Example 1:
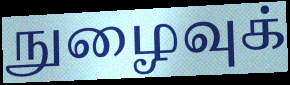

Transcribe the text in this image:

நுழைவுக்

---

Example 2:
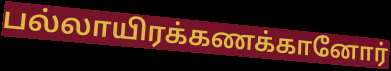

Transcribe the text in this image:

பல்லாயிரக்கணக்கானோர்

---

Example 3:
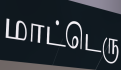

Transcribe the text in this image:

மாட்டெரு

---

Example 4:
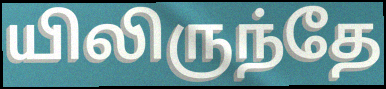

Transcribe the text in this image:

யிலிருந்தே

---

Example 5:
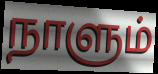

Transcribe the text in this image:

நாளும்